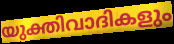
യുക്തിവാദികളും